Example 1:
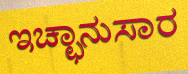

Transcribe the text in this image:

ಇಚ್ಛಾನುಸಾರ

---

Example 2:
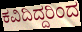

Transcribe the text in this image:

ಕವಿದಿದ್ದರಿಂದ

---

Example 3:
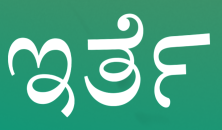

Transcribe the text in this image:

ಇರ್ತೆ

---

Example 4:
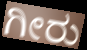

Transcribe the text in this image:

ಗೀರು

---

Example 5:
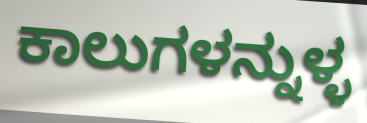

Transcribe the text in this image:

ಕಾಲುಗಳನ್ನುಳ್ಳ